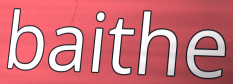
baithe